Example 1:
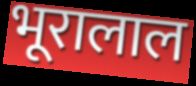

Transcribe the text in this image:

भूरालाल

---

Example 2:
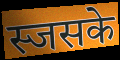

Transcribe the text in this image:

स्जसके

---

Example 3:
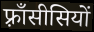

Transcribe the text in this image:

फ़्राँसीसियों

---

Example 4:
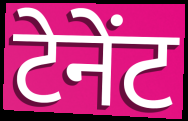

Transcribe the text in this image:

टेनेंट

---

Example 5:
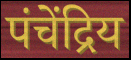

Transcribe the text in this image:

पंचेंद्रिय